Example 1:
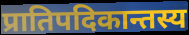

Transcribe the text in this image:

प्रातिपदिकान्तस्य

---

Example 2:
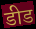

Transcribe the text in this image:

डीड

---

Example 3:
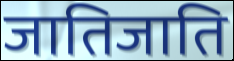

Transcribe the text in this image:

जातिजाति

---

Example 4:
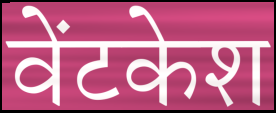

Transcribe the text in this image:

वेंटकेश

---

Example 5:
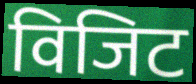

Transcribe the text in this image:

विजिट